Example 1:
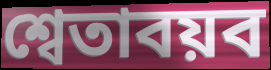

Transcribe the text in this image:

শ্বেতাবয়ব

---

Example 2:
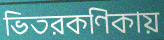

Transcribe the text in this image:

ভিতরকণিকায়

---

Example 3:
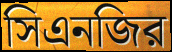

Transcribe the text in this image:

সিএনজির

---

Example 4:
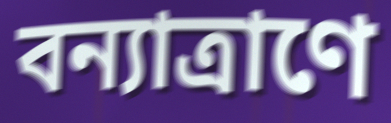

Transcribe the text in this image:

বন্যাত্রাণে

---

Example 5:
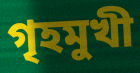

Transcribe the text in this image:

গৃহমুখী